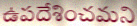
ఉపదేశించమని